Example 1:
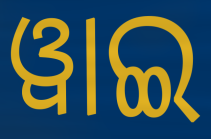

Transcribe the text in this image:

ୱାଇ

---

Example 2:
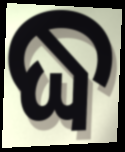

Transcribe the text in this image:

ଦ୍ଧ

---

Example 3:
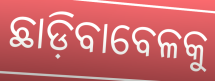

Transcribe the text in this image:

ଛାଡ଼ିବାବେଳକୁ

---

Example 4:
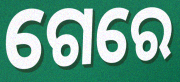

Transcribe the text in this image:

ଗେରେ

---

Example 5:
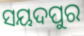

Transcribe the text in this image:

ସୟଦପୁର